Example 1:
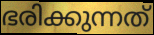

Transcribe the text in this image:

ഭരിക്കുന്നത്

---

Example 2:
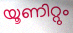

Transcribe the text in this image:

യൂണിറ്റും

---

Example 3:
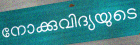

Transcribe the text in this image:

നോക്കുവിദ്യയുടെ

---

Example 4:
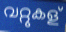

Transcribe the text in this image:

വറ്റുകള്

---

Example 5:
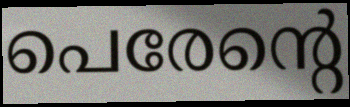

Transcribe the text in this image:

പെരേന്റെ